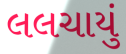
લલચાયું